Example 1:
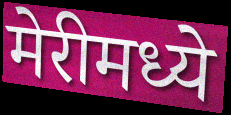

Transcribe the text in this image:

मेरीमध्ये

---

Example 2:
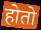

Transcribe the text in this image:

होतो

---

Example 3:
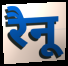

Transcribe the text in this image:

रैनू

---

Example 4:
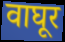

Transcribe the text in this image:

वाघूर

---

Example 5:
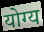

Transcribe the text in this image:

योग्य